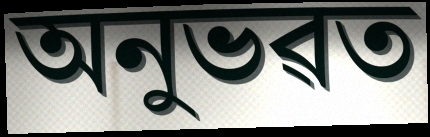
অনুভৱত